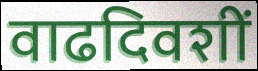
वाढदिवशीं